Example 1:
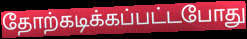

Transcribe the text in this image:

தோற்கடிக்கப்பட்டபோது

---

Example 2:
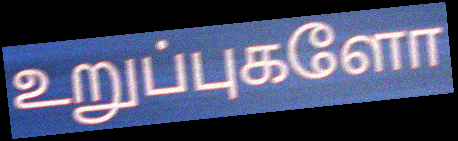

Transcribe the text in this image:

உறுப்புகளோ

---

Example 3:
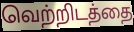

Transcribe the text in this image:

வெற்றிடத்தை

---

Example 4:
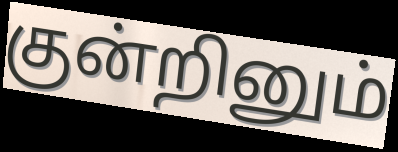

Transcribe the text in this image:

குன்றினும்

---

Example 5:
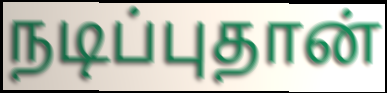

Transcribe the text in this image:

நடிப்புதான்